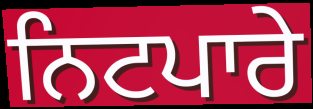
ਨਿਟਪਾਰੇ